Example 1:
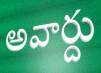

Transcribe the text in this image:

అవార్దు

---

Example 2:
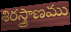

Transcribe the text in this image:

శిరస్త్రాణము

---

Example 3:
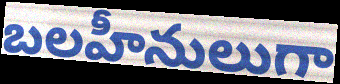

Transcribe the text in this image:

బలహీనులుగా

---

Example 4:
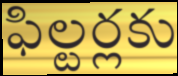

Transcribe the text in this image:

ఫిల్టర్లకు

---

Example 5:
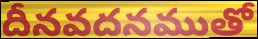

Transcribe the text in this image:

దీనవదనముతో